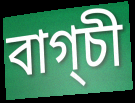
বাগ্চী